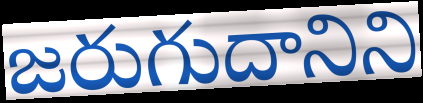
జరుగుదానిని